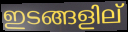
ഇടങ്ങളില്